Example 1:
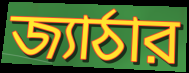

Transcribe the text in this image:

জ্যাঠার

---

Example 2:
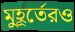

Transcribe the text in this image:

মুহূর্তেরও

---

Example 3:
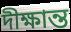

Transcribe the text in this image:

দীক্ষান্ত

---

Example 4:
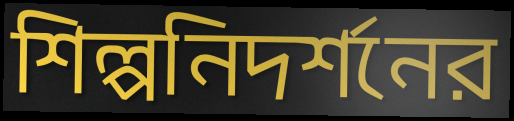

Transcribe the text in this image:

শিল্পনিদর্শনের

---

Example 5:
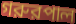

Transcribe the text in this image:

গরুরপাল